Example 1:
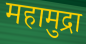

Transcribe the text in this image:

महामुद्रा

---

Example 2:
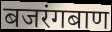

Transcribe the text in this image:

बजरंगबाण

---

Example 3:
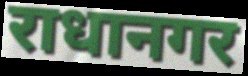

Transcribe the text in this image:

राधानगर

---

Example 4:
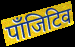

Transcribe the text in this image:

पाँजिटिव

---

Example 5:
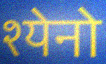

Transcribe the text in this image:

श्येनो